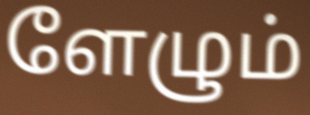
ளேழும்